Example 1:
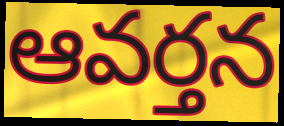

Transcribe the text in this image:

ఆవర్తన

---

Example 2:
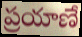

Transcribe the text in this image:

ప్రయాణే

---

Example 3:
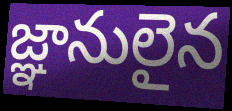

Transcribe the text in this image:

జ్ఞానులైన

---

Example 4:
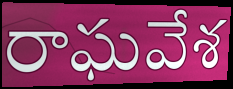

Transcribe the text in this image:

రాఘవేశ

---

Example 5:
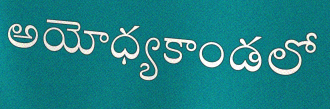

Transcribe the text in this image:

అయోధ్యకాండలో